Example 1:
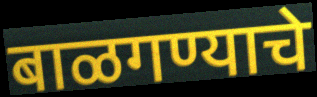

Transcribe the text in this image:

बाळगण्याचे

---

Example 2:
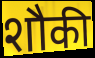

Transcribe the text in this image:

शौकी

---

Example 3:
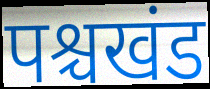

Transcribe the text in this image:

पश्चखंड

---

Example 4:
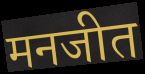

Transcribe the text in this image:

मनजीत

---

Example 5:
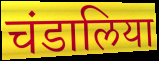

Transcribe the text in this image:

चंडालिया